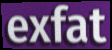
exfat